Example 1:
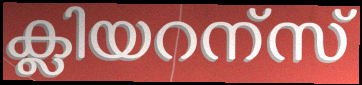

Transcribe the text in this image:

ക്ലിയറന്സ്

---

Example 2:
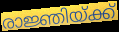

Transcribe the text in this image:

രാജ്ഞിയ്ക്ക്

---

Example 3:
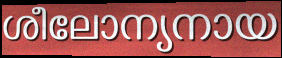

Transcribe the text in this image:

ശീലോന്യനായ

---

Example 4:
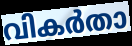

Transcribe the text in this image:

വികർതാ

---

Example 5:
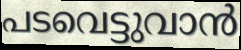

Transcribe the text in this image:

പടവെട്ടുവാൻ